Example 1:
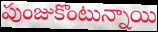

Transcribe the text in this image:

పుంజుకొంటున్నాయి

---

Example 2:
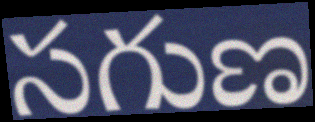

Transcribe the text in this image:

సగుణ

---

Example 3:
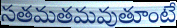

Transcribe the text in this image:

సతమతమవుతూంటే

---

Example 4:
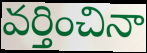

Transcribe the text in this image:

వర్తించినా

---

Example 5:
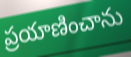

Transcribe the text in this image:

ప్రయాణించాను